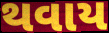
થવાય